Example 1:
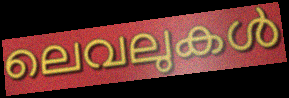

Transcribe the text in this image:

ലെവലുകൾ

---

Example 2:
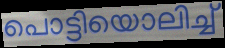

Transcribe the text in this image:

പൊട്ടിയൊലിച്ച്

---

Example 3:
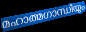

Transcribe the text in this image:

മഹാത്മഗാന്ധിയും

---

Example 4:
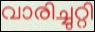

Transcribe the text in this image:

വാരിച്ചുറ്റി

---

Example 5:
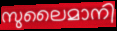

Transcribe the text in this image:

സുലൈമാനി